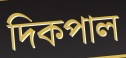
দিকপাল